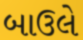
બાઉલે